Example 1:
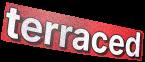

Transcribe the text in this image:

terraced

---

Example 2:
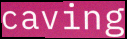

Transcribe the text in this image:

caving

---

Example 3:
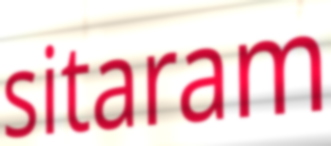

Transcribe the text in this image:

sitaram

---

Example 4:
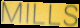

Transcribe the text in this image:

MILLS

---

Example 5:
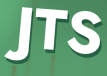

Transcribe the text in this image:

JTS